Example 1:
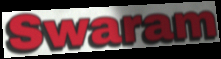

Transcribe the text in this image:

Swaram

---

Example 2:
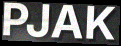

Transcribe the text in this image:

PJAK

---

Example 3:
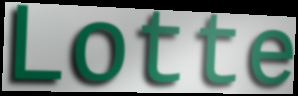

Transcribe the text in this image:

Lotte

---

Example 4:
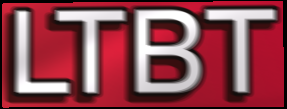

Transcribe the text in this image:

LTBT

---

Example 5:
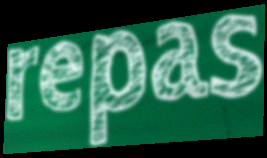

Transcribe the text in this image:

repas